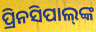
ପ୍ରିନସିପାଲ୍‍ଙ୍କ